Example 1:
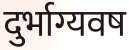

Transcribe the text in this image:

दुर्भाग्यवष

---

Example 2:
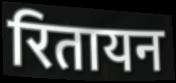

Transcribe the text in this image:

रितायन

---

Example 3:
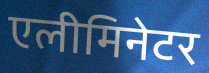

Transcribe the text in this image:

एलीमिनेटर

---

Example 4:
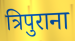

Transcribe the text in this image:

त्रिपुराना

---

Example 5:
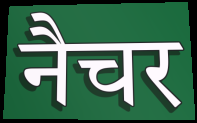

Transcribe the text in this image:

नैचर